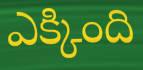
ఎక్కింది